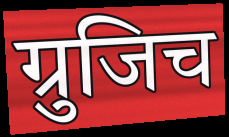
ग्रुजिच